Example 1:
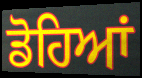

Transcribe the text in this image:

ਡੋਹਿਆਂ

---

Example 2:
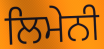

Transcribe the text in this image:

ਲਿਮੇਨੀ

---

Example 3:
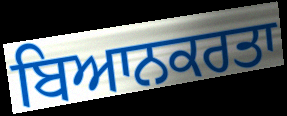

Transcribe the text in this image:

ਬਿਆਨਕਰਤਾ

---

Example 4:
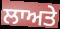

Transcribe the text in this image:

ਲਾਅਤੇ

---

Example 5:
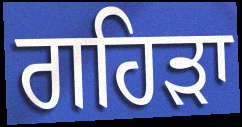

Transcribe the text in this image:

ਗਹਿੜਾ